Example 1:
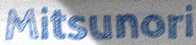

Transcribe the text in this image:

Mitsunori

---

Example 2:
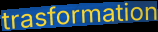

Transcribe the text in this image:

trasformation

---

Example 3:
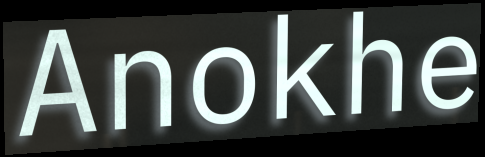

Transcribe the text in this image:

Anokhe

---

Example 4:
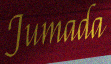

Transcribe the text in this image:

Jumada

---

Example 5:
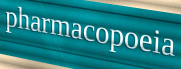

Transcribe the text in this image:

pharmacopoeia